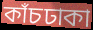
কাঁচঢাকা